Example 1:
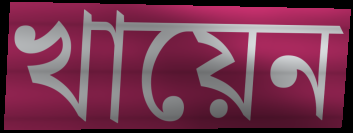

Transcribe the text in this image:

খায়েন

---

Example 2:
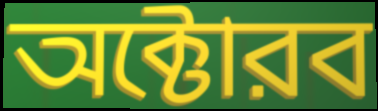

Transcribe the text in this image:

অক্টোরব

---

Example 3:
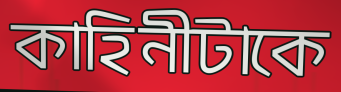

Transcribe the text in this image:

কাহিনীটাকে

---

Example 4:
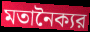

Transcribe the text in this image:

মতানৈক্যর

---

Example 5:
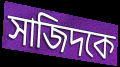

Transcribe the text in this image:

সাজিদকে